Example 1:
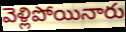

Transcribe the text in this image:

వెళ్లిపోయినారు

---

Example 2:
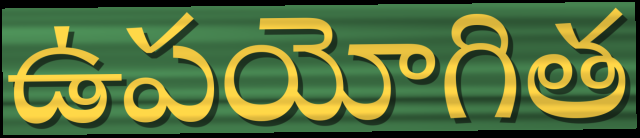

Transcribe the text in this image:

ఉపయోగిత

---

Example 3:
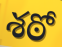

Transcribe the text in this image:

శఠో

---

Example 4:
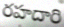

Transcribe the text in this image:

రహదారి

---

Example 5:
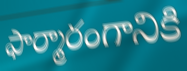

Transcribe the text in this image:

ఫార్మారంగానికి